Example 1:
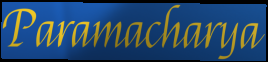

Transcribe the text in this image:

Paramacharya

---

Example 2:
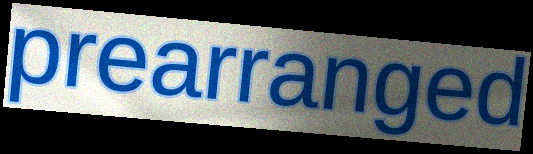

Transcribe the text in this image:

prearranged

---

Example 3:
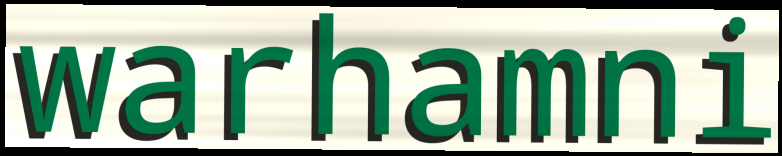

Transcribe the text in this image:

warhamni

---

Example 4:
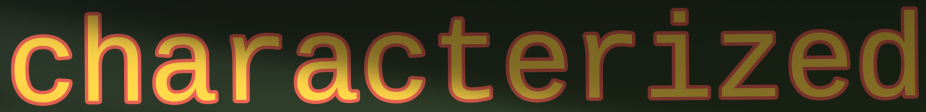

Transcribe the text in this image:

characterized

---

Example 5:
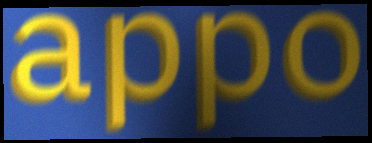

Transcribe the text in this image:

appo